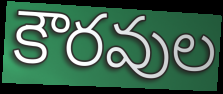
కౌరవుల